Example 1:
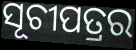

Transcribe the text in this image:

ସୂଚୀପତ୍ରର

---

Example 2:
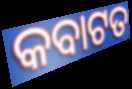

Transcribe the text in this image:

କବାଟତ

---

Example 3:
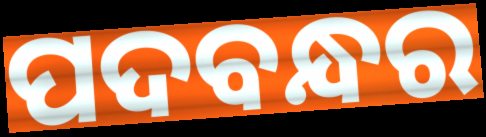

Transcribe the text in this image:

ପଦବନ୍ଧର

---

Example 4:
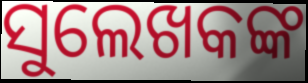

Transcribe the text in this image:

ସୁଲେଖକଙ୍କ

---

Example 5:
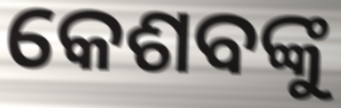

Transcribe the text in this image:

କେଶବଙ୍କୁ